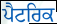
ਪੈਟਰਿਕ